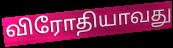
விரோதியாவது